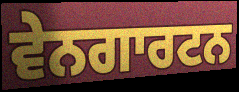
ਵੇਨਗਾਰਟਨ